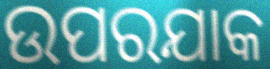
ଉପରଯାକ